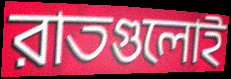
রাতগুলোই